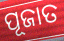
ପୂଜାତ